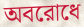
অবরোধে